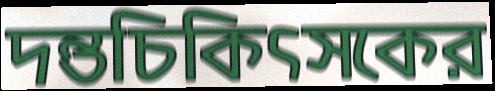
দন্তচিকিৎসকের